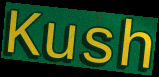
Kush